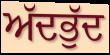
ਅੱਦਭੁੱਦ